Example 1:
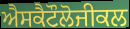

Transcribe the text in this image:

ਐਸਕੈਟੌਲੋਜੀਕਲ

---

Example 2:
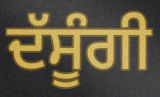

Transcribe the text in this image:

ਦੱਸੂੰਗੀ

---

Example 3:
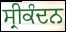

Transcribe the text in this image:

ਸ੍ਰੀਕੰਦਨ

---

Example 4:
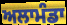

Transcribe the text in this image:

ਅਲਾਮੰਡਾ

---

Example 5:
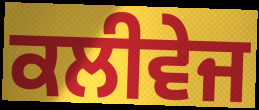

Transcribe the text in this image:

ਕਲੀਵੇਜ